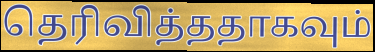
தெரிவித்ததாகவும்